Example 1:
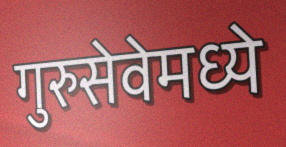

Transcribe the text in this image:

गुरुसेवेमध्ये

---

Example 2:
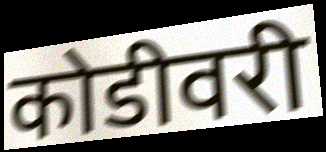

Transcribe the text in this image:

कोडीवरी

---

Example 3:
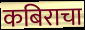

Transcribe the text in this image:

कबिराचा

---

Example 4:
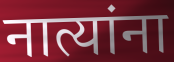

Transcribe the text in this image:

नात्यांना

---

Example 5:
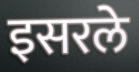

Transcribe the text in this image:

इसरले